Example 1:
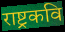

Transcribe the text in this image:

राष्ट्रकवि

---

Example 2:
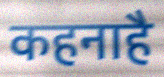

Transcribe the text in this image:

कहनाहै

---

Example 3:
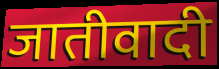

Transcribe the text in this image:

जातीवादी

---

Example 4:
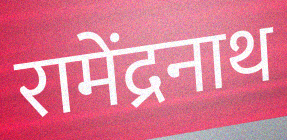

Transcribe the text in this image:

रामेंद्रनाथ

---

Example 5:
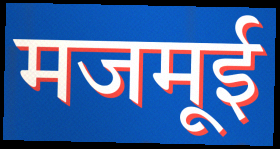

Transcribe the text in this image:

मजमूई